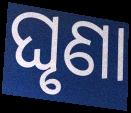
ଘୃଣା